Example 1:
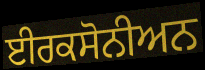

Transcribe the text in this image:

ਈਰਕਸੋਨੀਅਨ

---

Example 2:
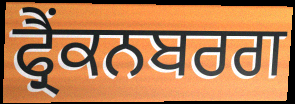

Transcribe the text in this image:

ਫ੍ਰੈਂਕਨਬਰਗ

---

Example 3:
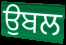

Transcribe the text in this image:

ਉਬਲ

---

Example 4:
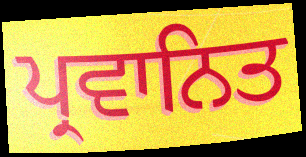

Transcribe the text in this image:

ਪ੍ਰਵਾਨਿਤ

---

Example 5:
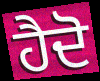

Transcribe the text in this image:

ਹੈਦੋ